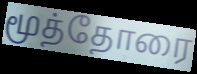
மூத்தோரை